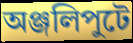
অঞ্জলিপুটে